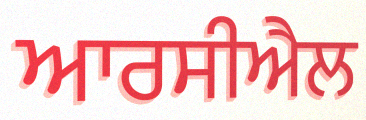
ਆਰਸੀਐਲ